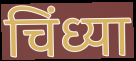
चिंध्या